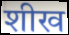
शीख